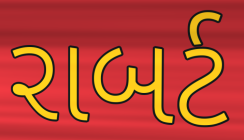
રાબર્ટ